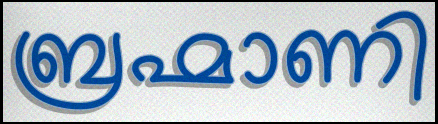
ബ്രഹ്മാണി